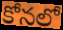
కోనలో